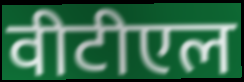
वीटीएल